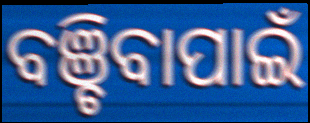
ବଞ୍ଚିବାପାଇଁ